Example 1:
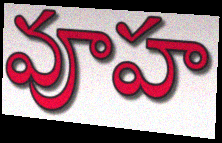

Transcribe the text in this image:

వూహ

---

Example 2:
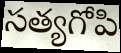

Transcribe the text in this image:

సత్యగోపి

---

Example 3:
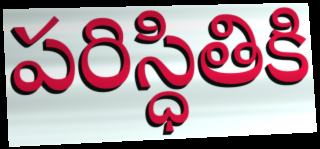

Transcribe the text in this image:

పరిస్ధితికి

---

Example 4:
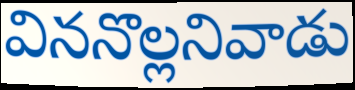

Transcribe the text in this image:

విననొల్లనివాడు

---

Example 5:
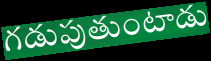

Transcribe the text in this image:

గడుపుతుంటాడు